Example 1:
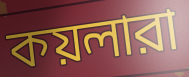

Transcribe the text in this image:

কয়লারা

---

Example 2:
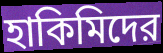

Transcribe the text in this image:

হাকিমিদের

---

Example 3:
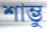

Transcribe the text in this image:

শাম্ভু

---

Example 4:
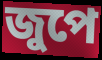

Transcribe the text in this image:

জুপে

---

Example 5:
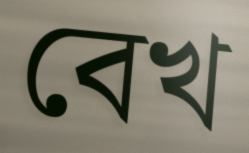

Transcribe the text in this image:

বেখ